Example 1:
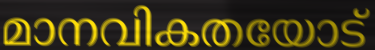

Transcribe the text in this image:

മാനവികതയോട്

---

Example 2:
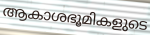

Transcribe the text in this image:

ആകാശഭൂമികളുടെ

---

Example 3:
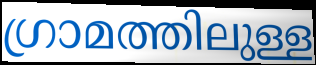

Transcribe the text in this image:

ഗ്രാമത്തിലുള്ള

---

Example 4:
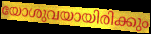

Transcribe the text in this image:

യോശുവയായിരിക്കും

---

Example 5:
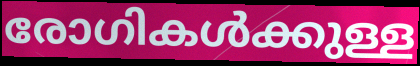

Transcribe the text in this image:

രോഗികൾക്കുള്ള